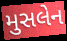
મુસલેન